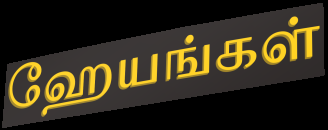
ஹேயங்கள்